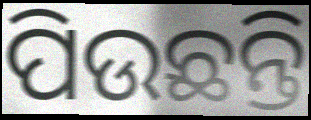
ପିଉଛନ୍ତି